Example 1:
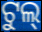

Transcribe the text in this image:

ଟୁଲ୍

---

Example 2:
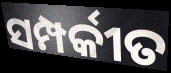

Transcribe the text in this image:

ସମ୍ପର୍କୀତ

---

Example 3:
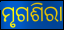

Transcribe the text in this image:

ମୃଗଶିରା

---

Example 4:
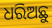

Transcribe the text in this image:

ଧରିଅଛୁ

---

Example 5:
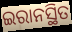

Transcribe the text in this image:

ଇରାନସ୍ଥିତ